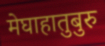
मेघाहातुबुरु